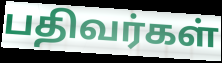
பதிவர்கள்